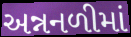
અન્નનળીમાં